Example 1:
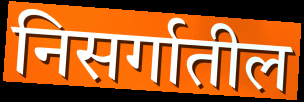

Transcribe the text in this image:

निसर्गातील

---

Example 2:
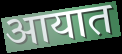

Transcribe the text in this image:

आयात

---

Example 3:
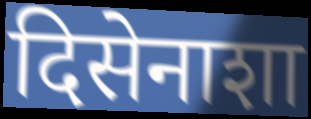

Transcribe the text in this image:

दिसेनाशा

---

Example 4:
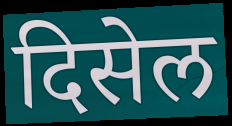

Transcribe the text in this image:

दिसेल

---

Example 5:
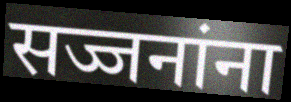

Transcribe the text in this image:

सज्जनांना